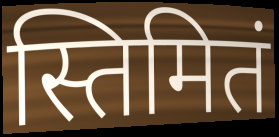
स्तिमितं